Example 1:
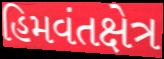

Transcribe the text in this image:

હિમવંતક્ષેત્ર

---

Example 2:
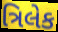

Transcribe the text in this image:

ત્રિલેક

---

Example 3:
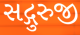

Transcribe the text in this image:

સદ્ગુરુજી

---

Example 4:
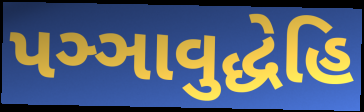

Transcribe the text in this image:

પઞ્ઞાવુદ્ધેહિ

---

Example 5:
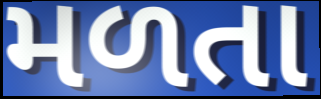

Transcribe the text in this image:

મળતા